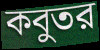
কবুতর